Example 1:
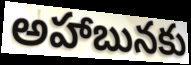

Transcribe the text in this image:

అహాబునకు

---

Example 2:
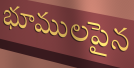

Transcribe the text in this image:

భూములపైన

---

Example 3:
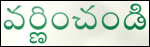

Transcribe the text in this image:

వర్ణించండి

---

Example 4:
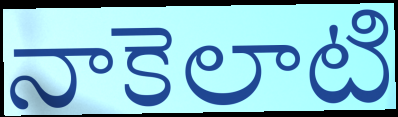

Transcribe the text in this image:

నాకెలాటి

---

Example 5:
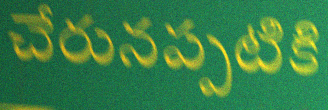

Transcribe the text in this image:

చేరునప్పటికి